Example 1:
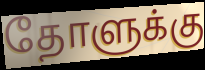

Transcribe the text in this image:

தோளுக்கு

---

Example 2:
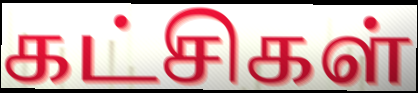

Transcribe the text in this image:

கட்சிகள்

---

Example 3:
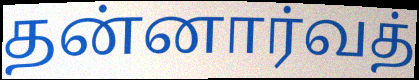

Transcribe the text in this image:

தன்னார்வத்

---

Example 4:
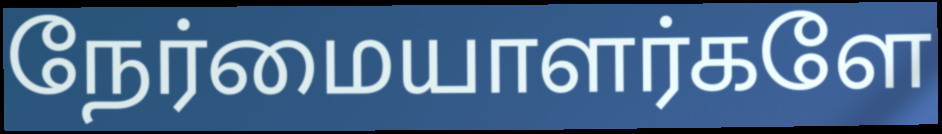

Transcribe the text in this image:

நேர்மையாளர்களே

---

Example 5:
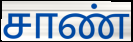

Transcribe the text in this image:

சாண்